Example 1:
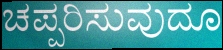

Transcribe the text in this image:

ಚಪ್ಪರಿಸುವುದೂ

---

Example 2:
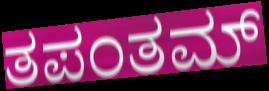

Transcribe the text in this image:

ತಪಂತಮ್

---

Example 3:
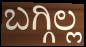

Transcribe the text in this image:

ಬಗ್ಗಿಲ್ಲ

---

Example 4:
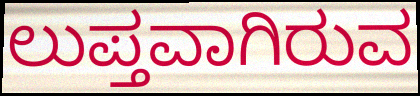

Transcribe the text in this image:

ಲುಪ್ತವಾಗಿರುವ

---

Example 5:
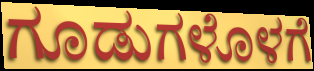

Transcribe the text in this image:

ಗೂಡುಗಳೊಳಗೆ